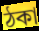
ঠকা